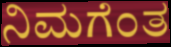
ನಿಮಗೆಂತ